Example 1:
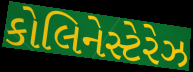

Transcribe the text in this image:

કોલિનેસ્ટેરેઝ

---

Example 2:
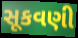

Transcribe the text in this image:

સૂકવણી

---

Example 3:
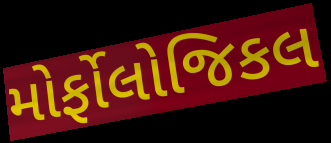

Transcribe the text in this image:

મોર્ફોલોજિકલ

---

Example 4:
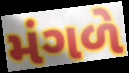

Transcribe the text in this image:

મંગળે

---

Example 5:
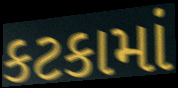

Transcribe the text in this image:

કટકામાં